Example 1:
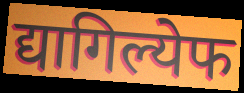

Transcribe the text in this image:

द्यागिल्येफ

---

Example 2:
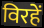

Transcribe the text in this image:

विरहें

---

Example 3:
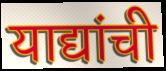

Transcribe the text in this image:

याद्यांची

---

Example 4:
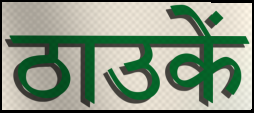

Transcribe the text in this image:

ठाउकें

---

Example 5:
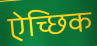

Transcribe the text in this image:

ऐच्छिक